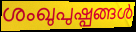
ശംഖുപുഷ്പങ്ങൾ